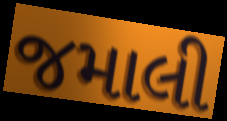
જમાલી